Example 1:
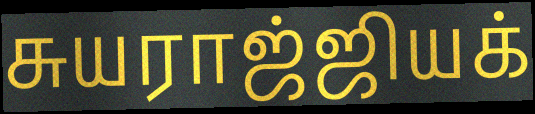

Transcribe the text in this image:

சுயராஜ்ஜியக்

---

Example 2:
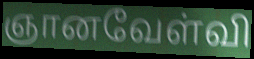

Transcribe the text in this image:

ஞானவேள்வி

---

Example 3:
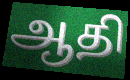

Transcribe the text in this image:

ஆதி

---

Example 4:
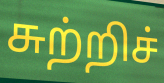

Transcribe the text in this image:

சுற்றிச்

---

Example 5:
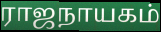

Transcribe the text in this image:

ராஜநாயகம்